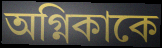
অগ্নিকাকে